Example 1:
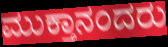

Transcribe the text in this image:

ಮುಕ್ತಾನಂದರು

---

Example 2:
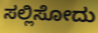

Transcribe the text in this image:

ಸಲ್ಲಿಸೋದು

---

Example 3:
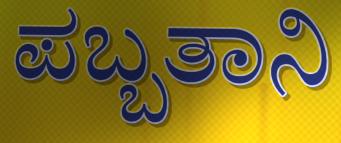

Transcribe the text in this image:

ಪಬ್ಬತಾನಿ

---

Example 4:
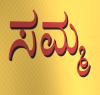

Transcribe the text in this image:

ಸಮ್ಮ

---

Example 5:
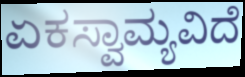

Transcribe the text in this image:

ಏಕಸ್ವಾಮ್ಯವಿದೆ